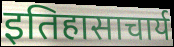
इतिहासाचार्य